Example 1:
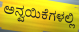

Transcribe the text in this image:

ಅನ್ವಯಿಕೆಗಳಲ್ಲಿ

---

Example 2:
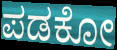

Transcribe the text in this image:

ಪಡಕೋ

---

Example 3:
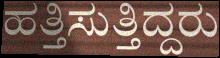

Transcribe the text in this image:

ಹತ್ತಿಸುತ್ತಿದ್ದರು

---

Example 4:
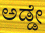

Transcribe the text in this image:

ಅಡ್ಡೇ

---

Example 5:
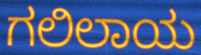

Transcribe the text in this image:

ಗಲಿಲಾಯ